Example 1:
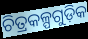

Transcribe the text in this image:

ଚିତ୍ରକଳ୍ପଗୁଡ଼ିକ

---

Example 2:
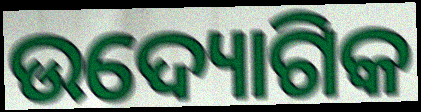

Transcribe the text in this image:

ଉଦ୍ୟୋଗିକ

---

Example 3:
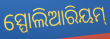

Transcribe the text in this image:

ସ୍ପୋଲିଆରିୟମ୍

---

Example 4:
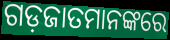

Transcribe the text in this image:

ଗଡ଼ଜାତମାନଙ୍କରେ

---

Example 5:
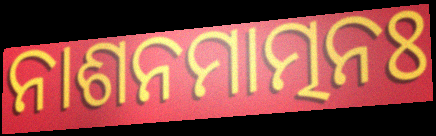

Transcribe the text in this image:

ନାଶନମାତ୍ମନଃ